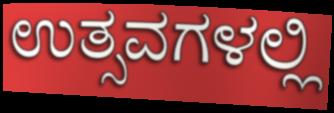
ಉತ್ಸವಗಳಲ್ಲಿ